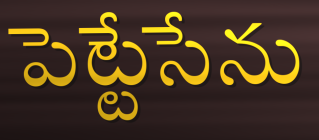
పెట్టేసేను